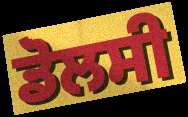
ਡੋਲਸੀ